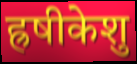
ह्रषीकेशु